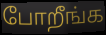
போறீங்க